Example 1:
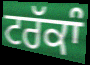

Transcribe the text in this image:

ਟਰੱਕਾੰ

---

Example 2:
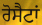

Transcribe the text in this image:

ਰੋਸੈਟਾਂ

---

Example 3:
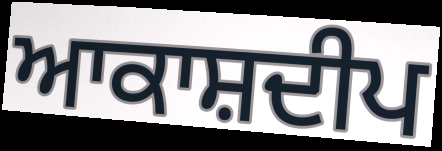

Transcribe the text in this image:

ਆਕਾਸ਼ਦੀਪ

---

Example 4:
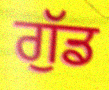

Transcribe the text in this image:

ਗੁੱਡ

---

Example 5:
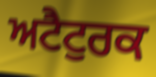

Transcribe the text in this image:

ਅਟੈਟੁਰਕ